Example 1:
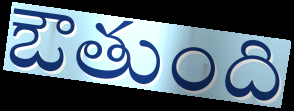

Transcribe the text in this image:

ఔతుంది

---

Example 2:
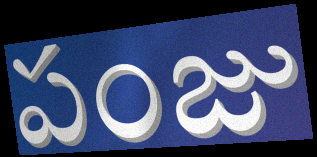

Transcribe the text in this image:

పంజు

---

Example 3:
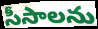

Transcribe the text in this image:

సీసాలను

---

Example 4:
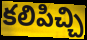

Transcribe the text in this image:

కలిపిచ్చి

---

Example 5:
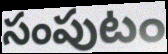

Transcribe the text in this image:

సంపుటం